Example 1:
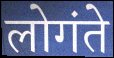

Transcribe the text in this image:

लोगंते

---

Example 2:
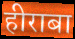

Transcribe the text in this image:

हीराबा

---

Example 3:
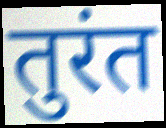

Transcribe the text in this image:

तुरंत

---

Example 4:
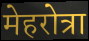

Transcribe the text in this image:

मेहरोत्रा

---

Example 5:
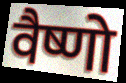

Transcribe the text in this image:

वैष्णो